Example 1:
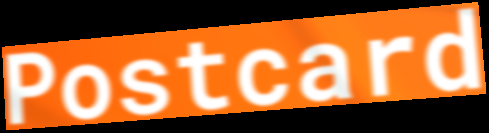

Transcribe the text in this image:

Postcard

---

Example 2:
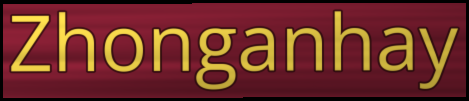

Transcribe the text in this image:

Zhonganhay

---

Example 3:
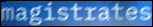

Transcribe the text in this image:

magistrates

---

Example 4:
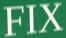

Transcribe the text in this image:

FIX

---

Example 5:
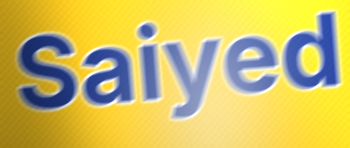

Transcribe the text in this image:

Saiyed